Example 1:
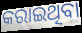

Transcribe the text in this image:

କରାଇଥିବା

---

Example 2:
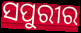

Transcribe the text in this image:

ସପୁରୀର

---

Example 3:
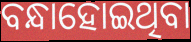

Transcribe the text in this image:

ବନ୍ଧାହୋଇଥିବା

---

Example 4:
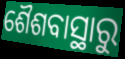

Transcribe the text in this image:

ଶୈଶବାସ୍ଥାରୁ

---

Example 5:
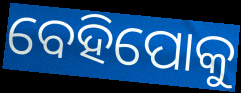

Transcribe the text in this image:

ବେହିପୋକୁ